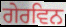
ਗੇਰਵਿਨ